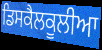
ਡਿਸਕੈਲਕੂਲੀਆ